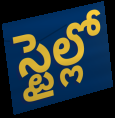
స్టైల్లో